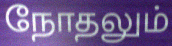
நோதலும்